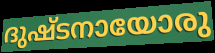
ദുഷ്ടനായോരു